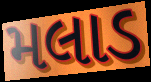
મલાડ